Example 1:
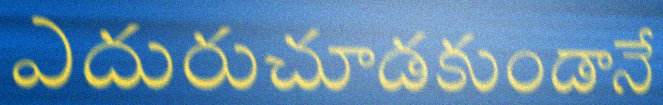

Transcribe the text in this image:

ఎదురుచూడకుండానే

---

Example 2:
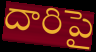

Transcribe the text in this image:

దారిపై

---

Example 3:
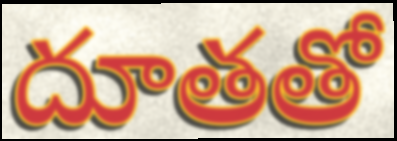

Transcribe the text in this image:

దూతతో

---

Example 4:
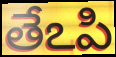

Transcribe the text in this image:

తేఽపి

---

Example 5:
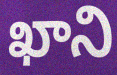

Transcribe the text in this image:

ఖాని